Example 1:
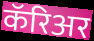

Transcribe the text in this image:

कॅरिअर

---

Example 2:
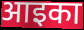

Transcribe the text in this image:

आइका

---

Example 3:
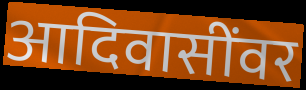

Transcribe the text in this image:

आदिवासींवर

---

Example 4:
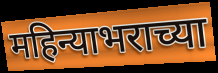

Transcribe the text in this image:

महिन्याभराच्या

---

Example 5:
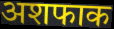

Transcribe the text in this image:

अशफाक